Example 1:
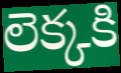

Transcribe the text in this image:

లెక్కకి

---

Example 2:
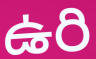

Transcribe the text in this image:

ఉరి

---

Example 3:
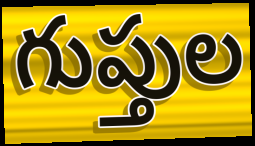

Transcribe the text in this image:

గుప్తుల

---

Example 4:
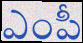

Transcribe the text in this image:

ఎంపీ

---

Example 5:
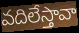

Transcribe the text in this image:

వదిలేస్తావా